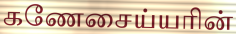
கணேசைய்யரின்